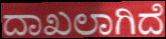
ದಾಖಲಾಗಿದೆ